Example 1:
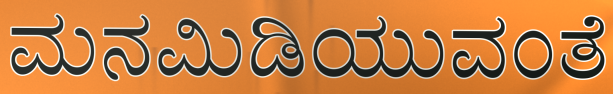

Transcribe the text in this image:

ಮನಮಿಡಿಯುವಂತೆ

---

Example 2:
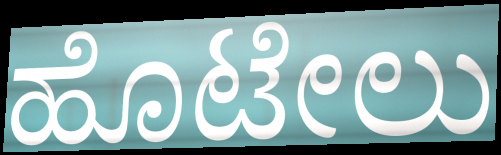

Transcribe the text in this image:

ಹೊಟೇಲು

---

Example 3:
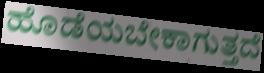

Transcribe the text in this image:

ಹೊಡೆಯಬೇಕಾಗುತ್ತದೆ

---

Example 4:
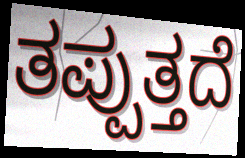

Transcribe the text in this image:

ತಪ್ಪುತ್ತದೆ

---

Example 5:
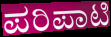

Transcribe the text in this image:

ಪರಿಪಾಟಿ